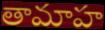
తామాహ